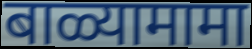
बाळ्यामामा